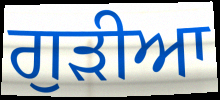
ਗੁੜੀਆ